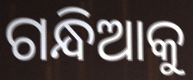
ଗନ୍ଧିଆକୁ